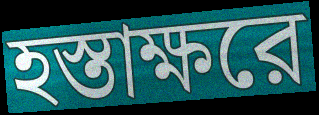
হস্তাক্ষরে